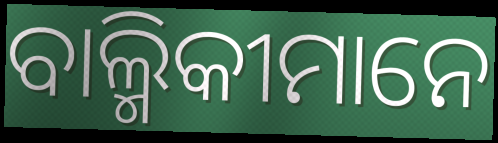
ବାଲ୍ମିକୀମାନେ